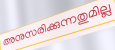
അനുസരിക്കുന്നതുമില്ല